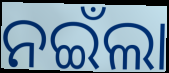
ନଇଁଲା